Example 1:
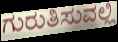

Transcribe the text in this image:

ಗುರುತಿಸುವಲ್ಲಿ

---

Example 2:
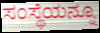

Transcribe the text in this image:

ಸಂಸ್ಥೆಯನ್ನೂ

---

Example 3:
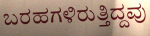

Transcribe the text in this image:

ಬರಹಗಳಿರುತ್ತಿದ್ದವು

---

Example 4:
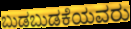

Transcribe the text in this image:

ಬುಡಬುಡಕೆಯವರು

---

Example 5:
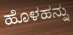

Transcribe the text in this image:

ಹೊಳಹನ್ನು